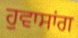
ਹੁਵਾਸਾਂਗ